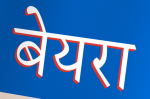
बेयरा